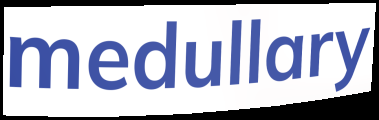
medullary